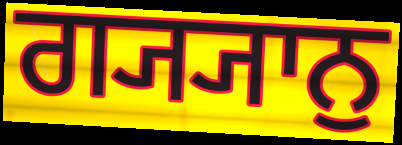
ਗ੍ਯ੍ਯਾਨੁ